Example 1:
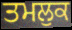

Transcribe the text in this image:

ਤਮਲੁਕ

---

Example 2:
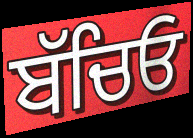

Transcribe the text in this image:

ਬੱਚਿਓ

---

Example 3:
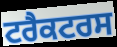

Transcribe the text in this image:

ਟਰੈਕਟਰਸ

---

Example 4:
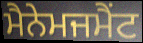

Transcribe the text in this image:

ਮੈਨੇਮਜਮੈਂਟ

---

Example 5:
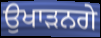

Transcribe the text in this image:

ਉਖਾੜਨਗੇ